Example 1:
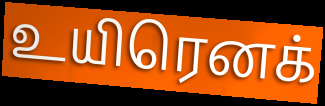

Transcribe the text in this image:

உயிரெனக்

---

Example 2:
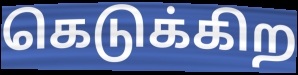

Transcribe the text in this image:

கெடுக்கிற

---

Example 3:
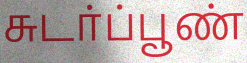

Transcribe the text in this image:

சுடர்ப்பூண்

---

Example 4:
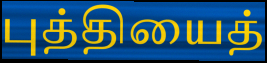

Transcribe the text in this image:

புத்தியைத்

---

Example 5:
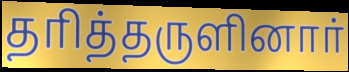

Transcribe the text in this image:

தரித்தருளினார்